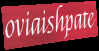
oviaishpate